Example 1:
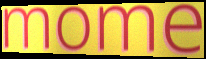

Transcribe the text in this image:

mome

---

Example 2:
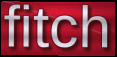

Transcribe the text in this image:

fitch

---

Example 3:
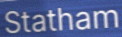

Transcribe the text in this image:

Statham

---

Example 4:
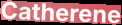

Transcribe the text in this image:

Catherene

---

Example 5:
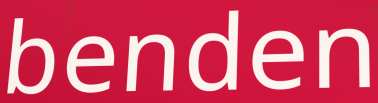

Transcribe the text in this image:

benden